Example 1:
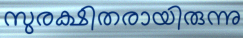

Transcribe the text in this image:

സുരക്ഷിതരായിരുന്നു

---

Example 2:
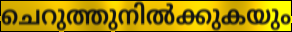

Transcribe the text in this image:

ചെറുത്തുനിൽക്കുകയും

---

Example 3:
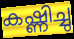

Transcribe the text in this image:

കഷ്ണിച്ചു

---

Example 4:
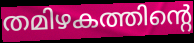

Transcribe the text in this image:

തമിഴകത്തിന്റെ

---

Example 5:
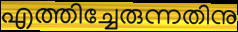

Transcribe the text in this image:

എത്തിച്ചേരുന്നതിനു